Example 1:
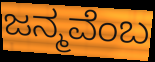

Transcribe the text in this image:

ಜನ್ಮವೆಂಬ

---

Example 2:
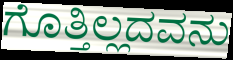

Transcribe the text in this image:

ಗೊತ್ತಿಲ್ಲದವನು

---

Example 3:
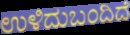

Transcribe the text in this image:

ಉಳಿದುಬಂದಿದೆ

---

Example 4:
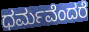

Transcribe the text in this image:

ಧರ್ಮವೆಂದರೆ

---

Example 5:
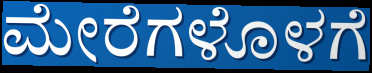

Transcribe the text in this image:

ಮೇರೆಗಳೊಳಗೆ